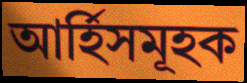
আৰ্হিসমূহক